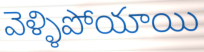
వెళ్ళిపోయాయి